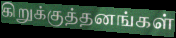
கிறுக்குத்தனங்கள்